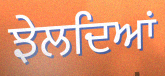
ਝੇਲਦਿਆਂ